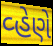
વ્હેણે